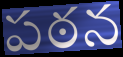
పఠన